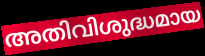
അതിവിശുദ്ധമായ